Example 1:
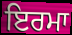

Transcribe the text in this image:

ਇਰਮਾ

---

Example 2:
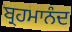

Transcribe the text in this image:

ਬ੍ਰਹਮਾਨੰਦ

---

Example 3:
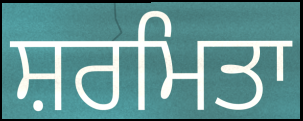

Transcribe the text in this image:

ਸ਼ਰਮਿਤਾ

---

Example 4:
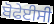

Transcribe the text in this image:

ਬੋਫੇਈਸੀ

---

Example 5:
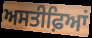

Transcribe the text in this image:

ਅਸਤੀਫ਼ਿਆਂ